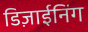
डिज़ाईनिंग